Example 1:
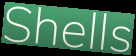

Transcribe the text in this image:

Shells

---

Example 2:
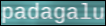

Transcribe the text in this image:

padagalu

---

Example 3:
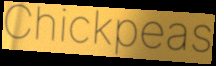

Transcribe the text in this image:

Chickpeas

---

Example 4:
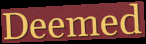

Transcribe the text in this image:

Deemed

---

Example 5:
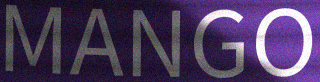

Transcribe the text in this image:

MANGO